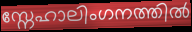
സ്നേഹാലിംഗനത്തിൽ